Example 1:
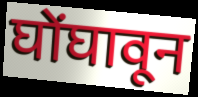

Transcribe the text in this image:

घोंघावून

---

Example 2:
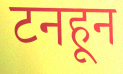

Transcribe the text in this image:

टनहून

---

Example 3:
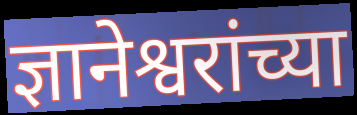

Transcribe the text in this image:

ज्ञानेश्वरांच्या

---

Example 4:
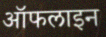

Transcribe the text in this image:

ऑफलाइन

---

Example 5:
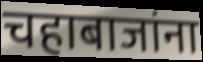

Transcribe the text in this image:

चहाबाजांना